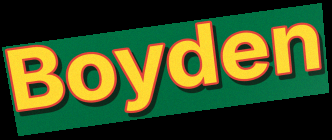
Boyden